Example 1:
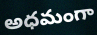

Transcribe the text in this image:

అధమంగా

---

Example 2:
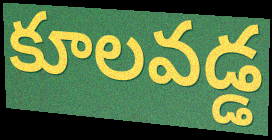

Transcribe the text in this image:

కూలవడ్డ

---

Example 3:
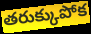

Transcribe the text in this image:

తరుక్కుపోక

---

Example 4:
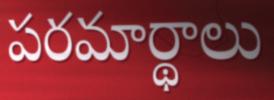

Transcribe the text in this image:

పరమార్థాలు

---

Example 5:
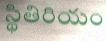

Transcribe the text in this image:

స్థితిరియం